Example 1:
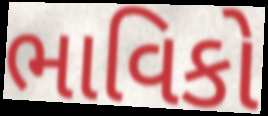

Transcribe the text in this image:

ભાવિકો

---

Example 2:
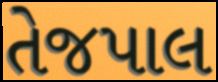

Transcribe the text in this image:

તેજપાલ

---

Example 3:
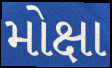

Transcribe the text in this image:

મોક્ષા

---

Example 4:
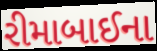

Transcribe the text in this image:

રીમાબાઈના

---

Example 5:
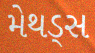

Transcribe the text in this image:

મેથડ્સ